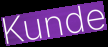
Kunde